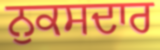
ਨੁਕਸਦਾਰ